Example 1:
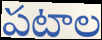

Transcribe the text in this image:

పటాల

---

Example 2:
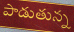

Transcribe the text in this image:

పాడుతున్న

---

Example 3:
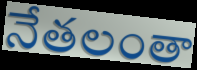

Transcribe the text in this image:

నేతలంతా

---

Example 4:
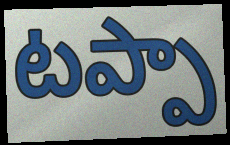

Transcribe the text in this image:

టప్పా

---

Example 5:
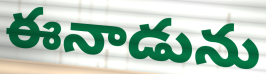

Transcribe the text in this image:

ఈనాడును